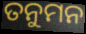
ତନୁମନ